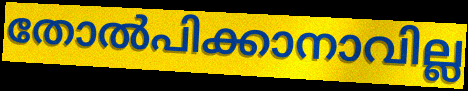
തോൽപിക്കാനാവില്ല